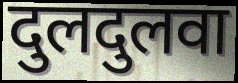
दुलदुलवा